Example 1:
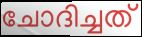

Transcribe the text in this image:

ചോദിച്ചത്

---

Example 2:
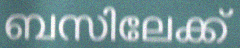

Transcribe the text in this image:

ബസിലേക്ക്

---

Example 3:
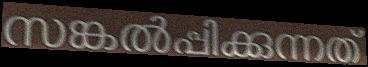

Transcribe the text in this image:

സങ്കൽപ്പിക്കുന്നത്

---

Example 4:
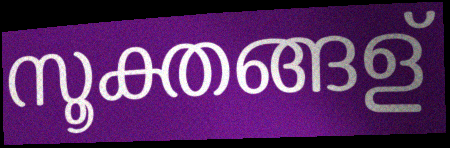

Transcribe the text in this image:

സൂക്തങ്ങള്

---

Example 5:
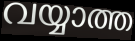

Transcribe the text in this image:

വയ്യാത്ത